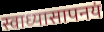
स्वाध्यासापनयं